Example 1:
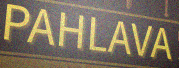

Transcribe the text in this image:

PAHLAVA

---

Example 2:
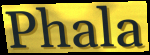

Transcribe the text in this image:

Phala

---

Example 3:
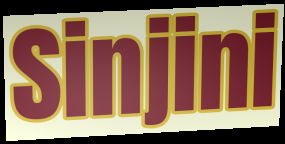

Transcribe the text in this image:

Sinjini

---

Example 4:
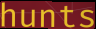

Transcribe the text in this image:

hunts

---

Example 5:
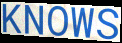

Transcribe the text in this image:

KNOWS